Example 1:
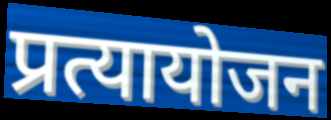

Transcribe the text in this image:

प्रत्यायोजन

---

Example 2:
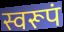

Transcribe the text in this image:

स्वरूपं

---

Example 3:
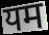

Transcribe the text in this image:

यम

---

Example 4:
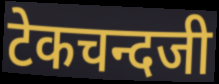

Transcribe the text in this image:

टेकचन्दजी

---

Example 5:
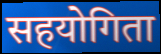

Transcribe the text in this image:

सहयोगिता